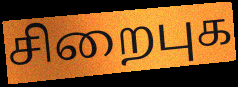
சிறைபுக